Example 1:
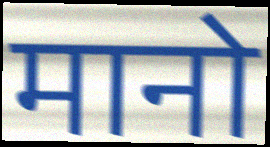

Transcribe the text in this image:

मानो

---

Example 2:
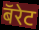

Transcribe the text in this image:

बॅरेट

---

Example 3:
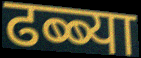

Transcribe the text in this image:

ढब्ब्या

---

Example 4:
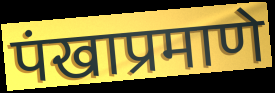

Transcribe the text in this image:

पंखाप्रमाणे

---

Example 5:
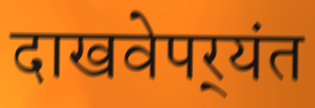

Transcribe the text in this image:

दाखवेपर्यंत